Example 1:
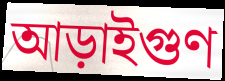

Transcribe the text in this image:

আড়াইগুণ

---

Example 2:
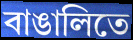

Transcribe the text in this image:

বাঙালিতে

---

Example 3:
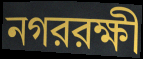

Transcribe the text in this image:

নগররক্ষী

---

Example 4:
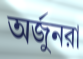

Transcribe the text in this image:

অর্জুনরা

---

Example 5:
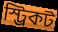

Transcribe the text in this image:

স্ট্রিকট